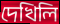
দেখিলি